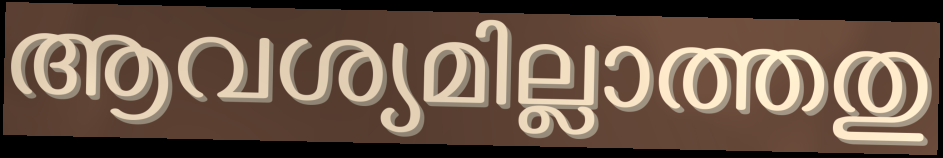
ആവശ്യമില്ലാത്തതു